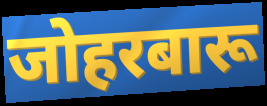
जोहरबारू